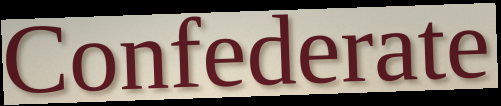
Confederate